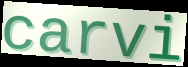
carvi